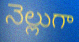
నెల్లుగా